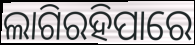
ଲାଗିରହିପାରେ